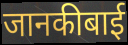
जानकीबाई